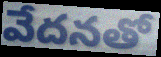
వేదనతో